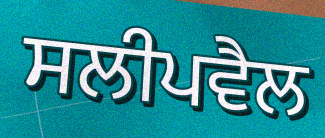
ਸਲੀਪਵੈਲ